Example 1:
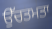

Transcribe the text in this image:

ਉੱਚਤਮਤਾ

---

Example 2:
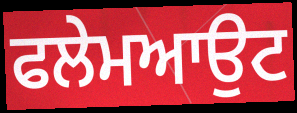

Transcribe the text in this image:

ਫਲੇਮਆਉਟ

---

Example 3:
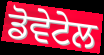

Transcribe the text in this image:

ਡੋਵੇਟੇਲ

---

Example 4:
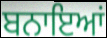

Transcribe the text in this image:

ਬਨਾਇਆਂ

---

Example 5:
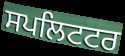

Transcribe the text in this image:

ਸਪਲਿਟਟਰ